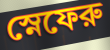
স্নেফেরু